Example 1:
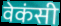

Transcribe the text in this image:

वेकंसी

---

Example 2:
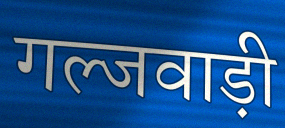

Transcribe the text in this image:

गल्जवाड़ी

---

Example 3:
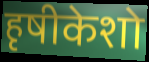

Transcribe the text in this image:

हृषीकेशो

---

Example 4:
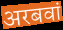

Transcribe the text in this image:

अरबवां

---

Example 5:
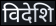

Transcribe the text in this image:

विदेशि